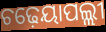
ଚଢ଼େୟାପଲ୍ଲୀ